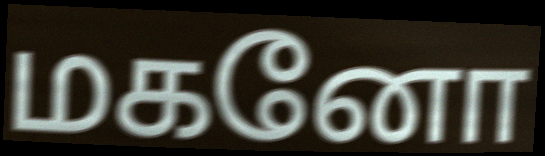
மகனோ